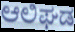
ಆಲಿಘಡ